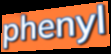
phenyl